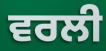
ਵਰਲੀ